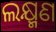
ଲକ୍ଷ୍ମଣ